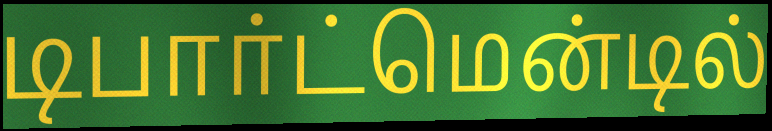
டிபார்ட்மென்டில்